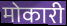
मोकारी